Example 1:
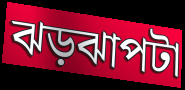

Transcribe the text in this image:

ঝড়ঝাপটা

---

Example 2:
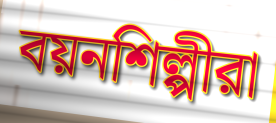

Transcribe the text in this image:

বয়নশিল্পীরা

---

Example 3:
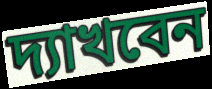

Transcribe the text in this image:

দ্যাখবেন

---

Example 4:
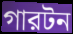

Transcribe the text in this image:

গারটন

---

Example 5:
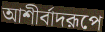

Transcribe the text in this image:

আশীর্বাদরূপে